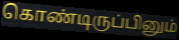
கொண்டிருப்பினும்